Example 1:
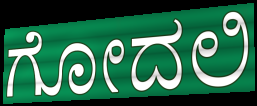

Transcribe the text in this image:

ಗೋದಲಿ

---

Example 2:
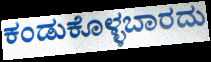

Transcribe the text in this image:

ಕಂಡುಕೊಳ್ಳಬಾರದು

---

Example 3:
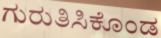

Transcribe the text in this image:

ಗುರುತಿಸಿಕೊಂಡ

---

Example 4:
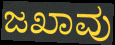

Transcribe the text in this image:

ಜಖಾವು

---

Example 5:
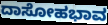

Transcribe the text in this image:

ದಾಸೋಹಭಾವ